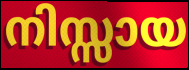
നിസ്സായ